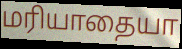
மரியாதையா